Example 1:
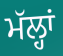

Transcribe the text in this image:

ਮੱਲ੍ਹਾਂ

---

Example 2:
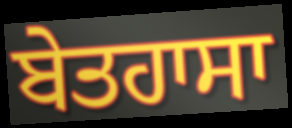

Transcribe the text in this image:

ਬੇਤਹਾਸਾ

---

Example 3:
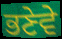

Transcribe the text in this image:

ਭਣੇਵੇ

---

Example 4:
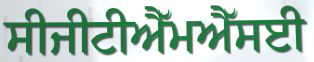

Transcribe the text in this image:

ਸੀਜੀਟੀਐੱਮਐੱਸਈ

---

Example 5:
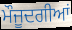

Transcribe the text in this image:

ਮੌਜੂਦਗੀਆਂ